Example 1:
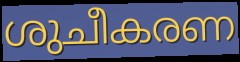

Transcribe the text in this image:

ശുചീകരണ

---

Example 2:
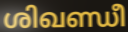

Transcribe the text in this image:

ശിഖണ്ഡീ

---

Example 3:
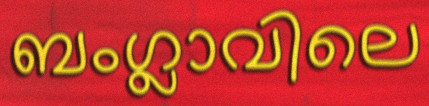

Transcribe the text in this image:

ബംഗ്ലാവിലെ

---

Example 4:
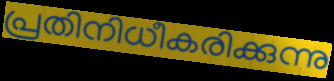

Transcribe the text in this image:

പ്രതിനിധീകരിക്കുന്നു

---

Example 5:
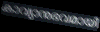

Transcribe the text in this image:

കാവ്യാനുഭവമായി